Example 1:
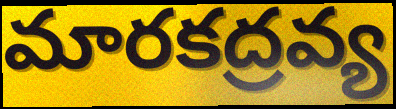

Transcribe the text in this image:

మారకద్రవ్య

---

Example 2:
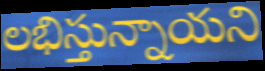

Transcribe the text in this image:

లభిస్తున్నాయని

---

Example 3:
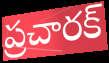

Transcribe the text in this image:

ప్రచారక్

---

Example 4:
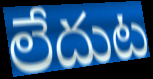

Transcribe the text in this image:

లేదుట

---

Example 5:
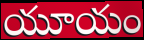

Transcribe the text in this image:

యూయం